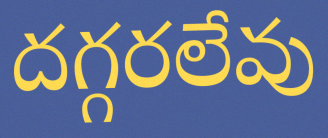
దగ్గరలేవు